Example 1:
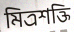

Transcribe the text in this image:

মিত্ৰশক্তি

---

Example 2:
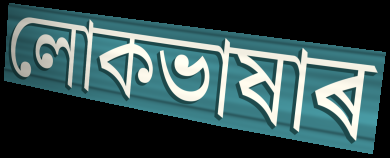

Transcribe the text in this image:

লোকভাষাৰ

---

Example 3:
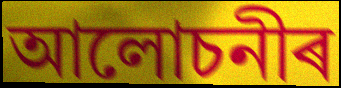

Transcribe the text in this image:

আলোচনীৰ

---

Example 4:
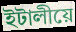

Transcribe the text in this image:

ইটালীয়ে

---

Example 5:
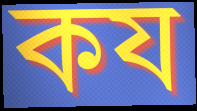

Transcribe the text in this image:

কয